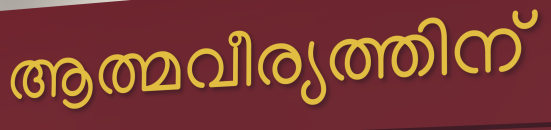
ആത്മവീര്യത്തിന്